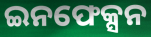
ଇନଫେକ୍ସନ